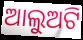
ଆଲୁଅଟି